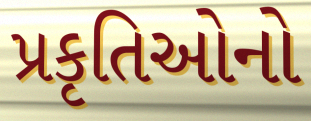
પ્રકૃતિઓનો